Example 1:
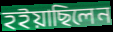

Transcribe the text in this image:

হইয়াছিলেন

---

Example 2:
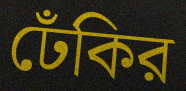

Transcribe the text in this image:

ঢেঁকির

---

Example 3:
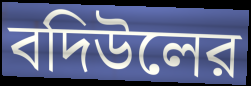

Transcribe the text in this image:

বদিউলের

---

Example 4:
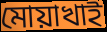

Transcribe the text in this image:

মোয়াখাই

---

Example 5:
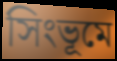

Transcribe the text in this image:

সিংভূমে